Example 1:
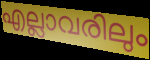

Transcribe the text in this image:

എല്ലാവരിലും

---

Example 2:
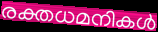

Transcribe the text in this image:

രക്തധമനികൾ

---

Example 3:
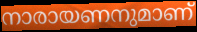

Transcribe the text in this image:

നാരായണനുമാണ്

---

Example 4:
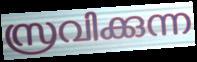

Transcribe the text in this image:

സ്രവിക്കുന്ന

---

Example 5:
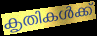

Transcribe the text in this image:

കൃതികൾക്ക്